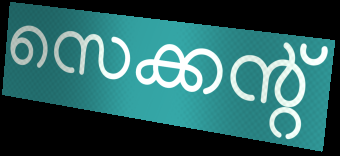
സെക്കന്റ്